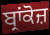
ਬ੍ਰਾਂਕੋਜ਼